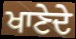
ਖਾਣੇਦੇ